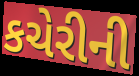
કચેરીની